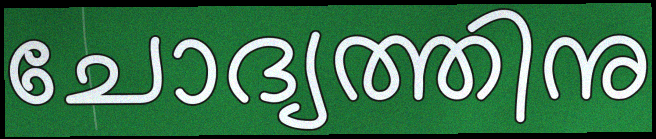
ചോദ്യത്തിനു